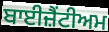
ਬਾਈਜ਼ੈਂਟੀਅਮ